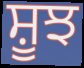
ਸ਼ੂਝ